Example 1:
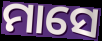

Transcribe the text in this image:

ମାସେ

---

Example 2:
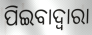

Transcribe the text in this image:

ପିଇବାଦ୍ଵାରା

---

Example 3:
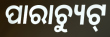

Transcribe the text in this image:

ପାରାଚ୍ୟୁଟ୍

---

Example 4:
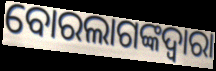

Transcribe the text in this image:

ବୋରଲାଗଙ୍କଦ୍ୱାରା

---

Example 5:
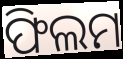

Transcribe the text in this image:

ଫିଲମ